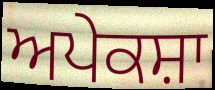
ਅਪੇਕਸ਼ਾ